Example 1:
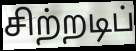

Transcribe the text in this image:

சிற்றடிப்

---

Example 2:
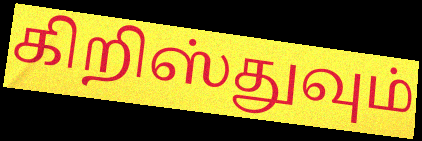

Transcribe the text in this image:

கிறிஸ்துவும்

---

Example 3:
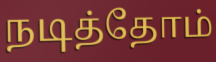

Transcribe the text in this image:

நடித்தோம்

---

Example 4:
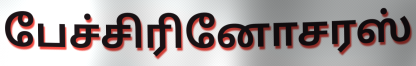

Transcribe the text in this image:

பேச்சிரினோசரஸ்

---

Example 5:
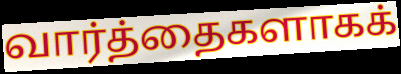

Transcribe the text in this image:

வார்த்தைகளாகக்